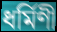
ধর্মিণী